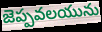
జెప్పవలయును